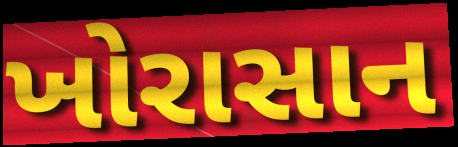
ખોરાસાન